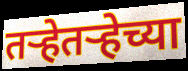
तर्‍हेतर्‍हेच्या